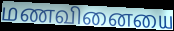
மணவினையை